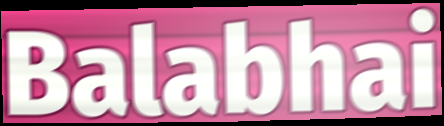
Balabhai